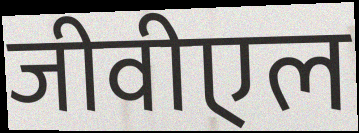
जीवीएल